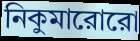
নিকুমারোরো